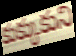
కుక్కుకుని